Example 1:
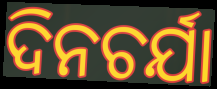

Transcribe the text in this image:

ଦିନଚର୍ଯା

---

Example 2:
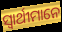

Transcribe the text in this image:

ସ୍ଵାର୍ଥୀମାନେ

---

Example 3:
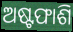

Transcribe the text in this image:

ଅଷ୍ଟଫାଶି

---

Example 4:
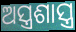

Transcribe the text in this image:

ଅସ୍ତ୍ରଶାସ୍ତ୍ର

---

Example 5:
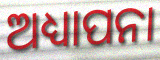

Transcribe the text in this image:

ଅଧ୍ୟାପନା